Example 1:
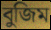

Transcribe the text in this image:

বুজিম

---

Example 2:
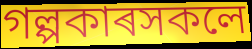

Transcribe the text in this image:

গল্পকাৰসকলে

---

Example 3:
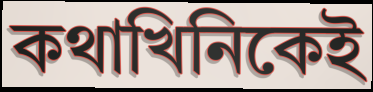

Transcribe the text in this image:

কথাখিনিকেই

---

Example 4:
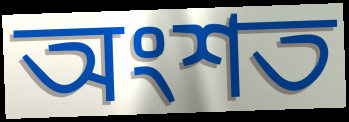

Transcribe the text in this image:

অংশত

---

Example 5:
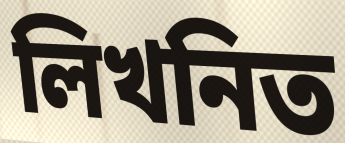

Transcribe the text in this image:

লিখনিত